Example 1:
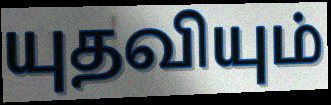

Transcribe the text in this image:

யுதவியும்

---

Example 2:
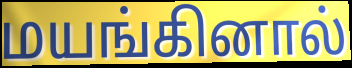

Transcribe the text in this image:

மயங்கினால்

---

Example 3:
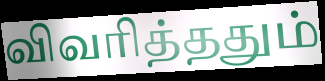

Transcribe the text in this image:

விவரித்ததும்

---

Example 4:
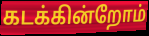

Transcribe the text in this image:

கடக்கின்றோம்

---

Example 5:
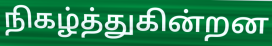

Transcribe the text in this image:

நிகழ்த்துகின்றன